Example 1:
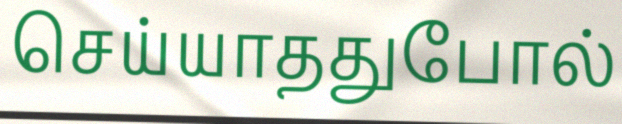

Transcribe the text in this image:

செய்யாததுபோல்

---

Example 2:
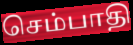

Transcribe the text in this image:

செம்பாதி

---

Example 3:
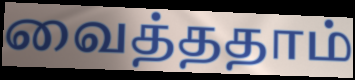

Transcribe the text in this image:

வைத்ததாம்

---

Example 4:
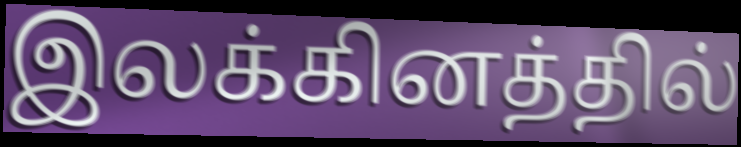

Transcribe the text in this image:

இலக்கினத்தில்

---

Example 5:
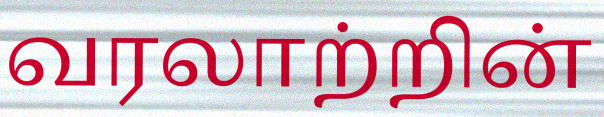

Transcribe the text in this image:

வரலாற்றின்